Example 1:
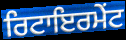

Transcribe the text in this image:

ਰਿਟਾਇਰਮੇਂਟ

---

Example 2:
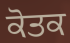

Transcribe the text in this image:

ਕੋਤਕ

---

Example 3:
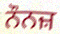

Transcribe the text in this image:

ਨੌਨਜ਼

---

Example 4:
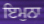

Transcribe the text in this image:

ਇਮੁਨਾ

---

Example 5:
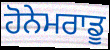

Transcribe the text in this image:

ਹੋਨੇਮਰਾਡੂ